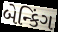
બેન્કિંગ